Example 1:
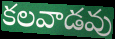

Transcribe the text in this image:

కలవాడవు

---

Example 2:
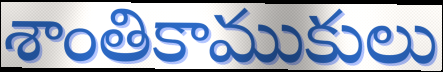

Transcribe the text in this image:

శాంతికాముకులు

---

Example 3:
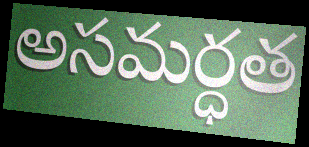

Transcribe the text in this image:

అసమర్ధత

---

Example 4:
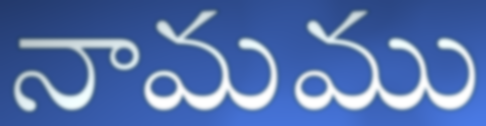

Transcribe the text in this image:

నామము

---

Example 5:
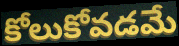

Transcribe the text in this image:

కోలుకోవడమే